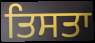
ਤਿਸਤਾ